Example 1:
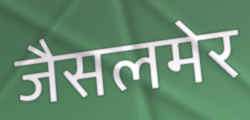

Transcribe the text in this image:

जैसलमेर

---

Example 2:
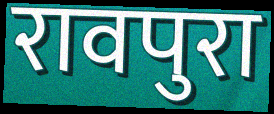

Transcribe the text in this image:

रावपुरा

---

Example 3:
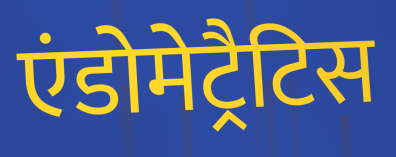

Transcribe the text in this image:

एंडोमेट्रैटिस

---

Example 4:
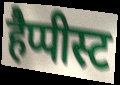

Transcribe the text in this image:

हैप्पीस्ट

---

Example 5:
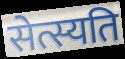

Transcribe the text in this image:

सेत्स्यति